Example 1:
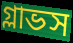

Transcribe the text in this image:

গ্লাভস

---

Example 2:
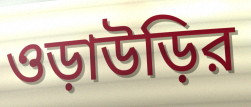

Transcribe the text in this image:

ওড়াউড়ির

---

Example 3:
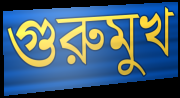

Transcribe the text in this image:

গুরুমুখ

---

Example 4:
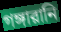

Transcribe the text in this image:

গঙ্গারানি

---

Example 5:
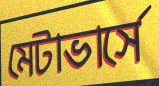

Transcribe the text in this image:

মেটাভার্সে